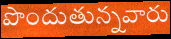
పొందుతున్నవారు